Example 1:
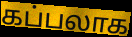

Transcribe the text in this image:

கப்பலாக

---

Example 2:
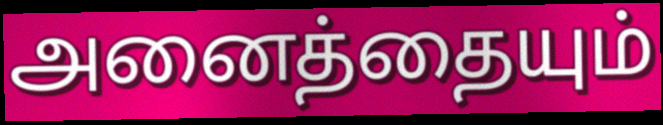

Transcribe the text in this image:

அனைத்தையும்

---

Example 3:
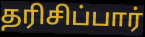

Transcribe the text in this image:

தரிசிப்பார்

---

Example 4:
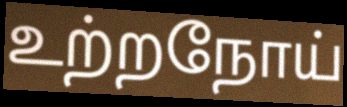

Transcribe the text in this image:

உற்றநோய்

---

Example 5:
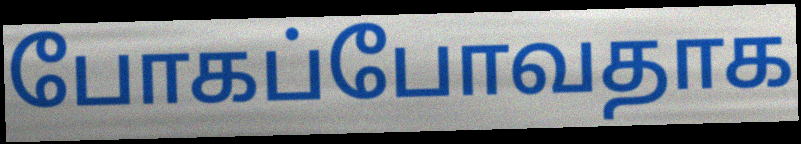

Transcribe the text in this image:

போகப்போவதாக